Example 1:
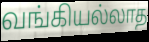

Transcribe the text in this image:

வங்கியல்லாத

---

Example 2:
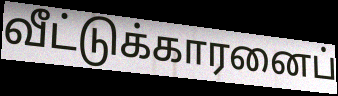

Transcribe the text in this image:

வீட்டுக்காரனைப்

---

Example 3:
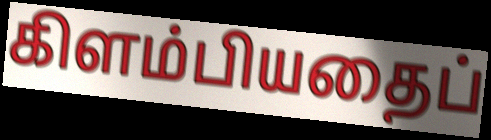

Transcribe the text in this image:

கிளம்பியதைப்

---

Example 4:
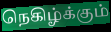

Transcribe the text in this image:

நெகிழ்க்கும்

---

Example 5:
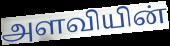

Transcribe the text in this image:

அளவியின்